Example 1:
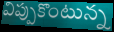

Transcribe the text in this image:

విప్పుకొంటున్న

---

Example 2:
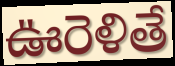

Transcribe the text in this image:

ఊరెళితే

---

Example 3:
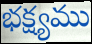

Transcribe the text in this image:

భక్ష్యము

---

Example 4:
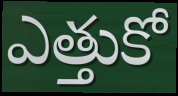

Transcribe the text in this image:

ఎత్తుకో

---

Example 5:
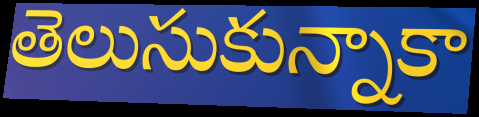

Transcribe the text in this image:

తెలుసుకున్నాకా